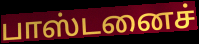
பாஸ்டனைச்